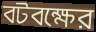
বটবক্ষের